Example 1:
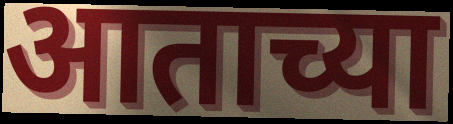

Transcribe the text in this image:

आताच्या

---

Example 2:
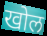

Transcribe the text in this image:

खोल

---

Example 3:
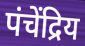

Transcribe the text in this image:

पंचेंद्रिय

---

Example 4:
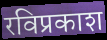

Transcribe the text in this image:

रविप्रकाश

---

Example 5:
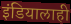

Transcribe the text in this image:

इंडियालाही